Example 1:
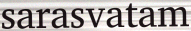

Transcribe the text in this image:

sarasvatam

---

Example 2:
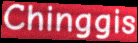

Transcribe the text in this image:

Chinggis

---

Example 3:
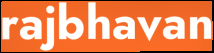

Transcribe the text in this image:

rajbhavan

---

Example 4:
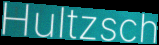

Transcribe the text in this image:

Hultzsch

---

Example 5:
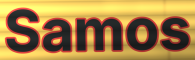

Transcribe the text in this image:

Samos